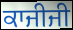
ਕਾਜੀਜੀ